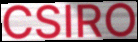
CSIRO